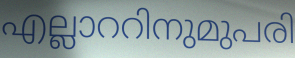
എല്ലാററിനുമുപരി